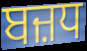
ਬਜ਼ਧ